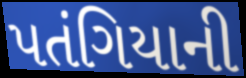
પતંગિયાની